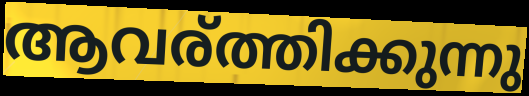
ആവര്ത്തിക്കുന്നു